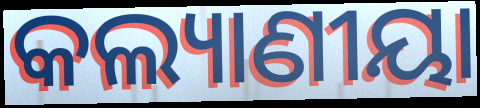
କଲ୍ୟାଣୀୟା